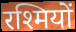
रश्मियों